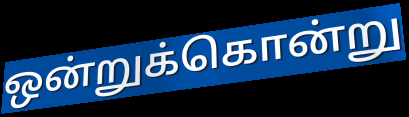
ஒன்றுக்கொன்று